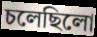
চলেছিলো